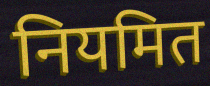
नियमित